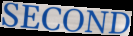
SECOND